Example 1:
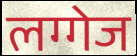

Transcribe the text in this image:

लग्गेज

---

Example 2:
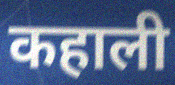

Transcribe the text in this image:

कहाली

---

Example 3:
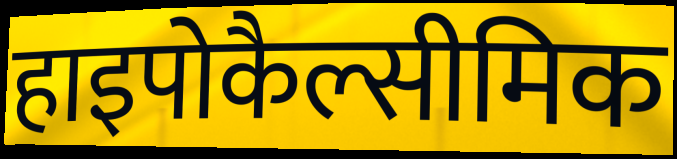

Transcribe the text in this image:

हाइपोकैल्सीमिक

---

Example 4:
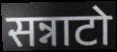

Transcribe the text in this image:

सन्नाटो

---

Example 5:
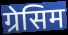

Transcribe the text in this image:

ग्रेसिम